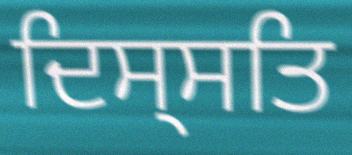
ਦਿਸ੍ਸਤਿ